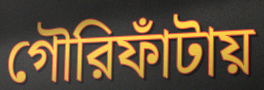
গৌরিফাঁটায়